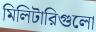
মিলিটারিগুলো